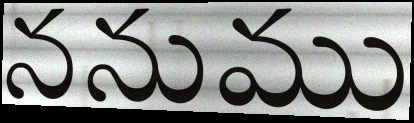
ననుము